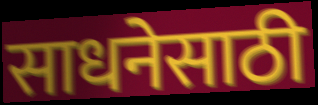
साधनेसाठी